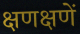
क्षणक्षणें